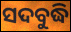
ସଦବୁଦ୍ଧି